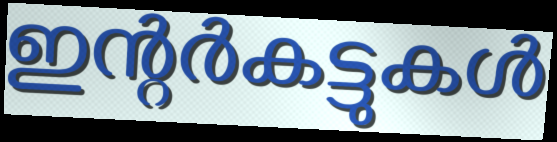
ഇന്റർകട്ടുകൾ